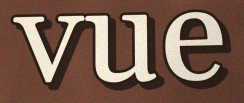
vue